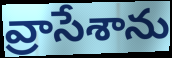
వ్రాసేశాను